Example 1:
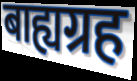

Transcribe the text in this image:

बाह्यग्रह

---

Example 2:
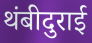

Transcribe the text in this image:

थंबीदुराई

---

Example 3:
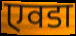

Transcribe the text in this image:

एवडा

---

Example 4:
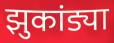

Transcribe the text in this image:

झुकांड्या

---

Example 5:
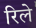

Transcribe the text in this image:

रिले